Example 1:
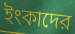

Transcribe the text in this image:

ইংকাদের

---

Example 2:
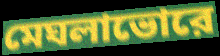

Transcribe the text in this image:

মেঘলাভোরে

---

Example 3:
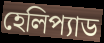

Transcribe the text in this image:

হেলিপ্যাড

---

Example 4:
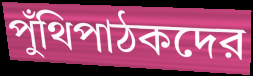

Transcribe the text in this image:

পুঁথিপাঠকদের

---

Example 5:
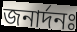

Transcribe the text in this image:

জনার্দনঃ